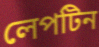
লেপটিন